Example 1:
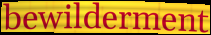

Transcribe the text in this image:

bewilderment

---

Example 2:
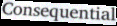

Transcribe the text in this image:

Consequential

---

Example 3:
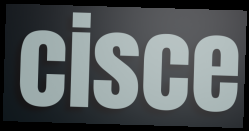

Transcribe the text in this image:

cisce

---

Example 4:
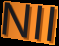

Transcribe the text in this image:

NII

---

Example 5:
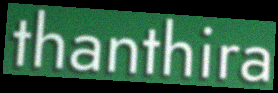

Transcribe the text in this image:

thanthira